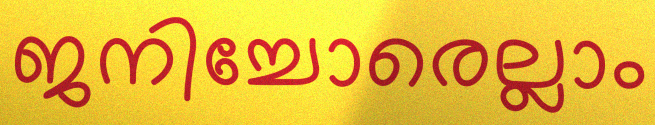
ജനിച്ചോരെല്ലാം